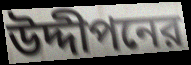
উদ্দীপনের